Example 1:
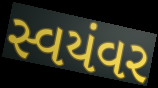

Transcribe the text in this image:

સ્વયંવર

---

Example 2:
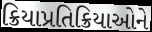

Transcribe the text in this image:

ક્રિયાપ્રતિક્રિયાઓને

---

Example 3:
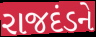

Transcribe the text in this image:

રાજદંડને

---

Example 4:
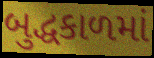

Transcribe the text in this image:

બુદ્ધકાળમાં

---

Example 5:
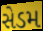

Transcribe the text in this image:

સેડમ